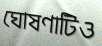
ঘোষণাটিও